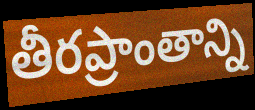
తీరప్రాంతాన్ని